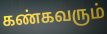
கண்கவரும்